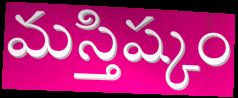
మస్తిష్కం